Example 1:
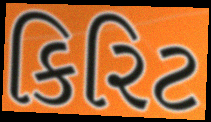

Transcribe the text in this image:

કિરિટ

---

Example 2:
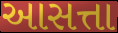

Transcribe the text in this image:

આસત્તા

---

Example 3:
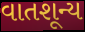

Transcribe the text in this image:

વાતશૂન્ય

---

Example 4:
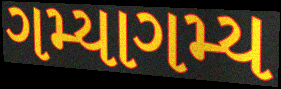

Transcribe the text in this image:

ગમ્યાગમ્ય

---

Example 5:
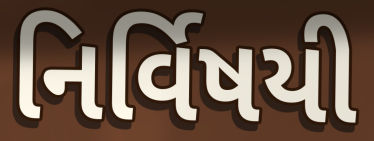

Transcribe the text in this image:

નિર્વિષયી